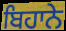
ਬਿਹਾਨੇ